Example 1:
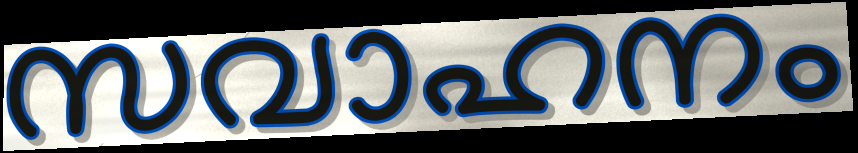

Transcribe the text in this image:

സവാഹനം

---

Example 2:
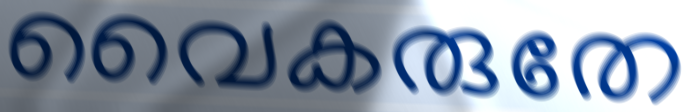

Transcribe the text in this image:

വൈകരുതേ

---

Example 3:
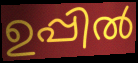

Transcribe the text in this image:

ഉപ്പിൽ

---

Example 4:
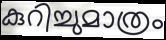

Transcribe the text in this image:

കുറിച്ചുമാത്രം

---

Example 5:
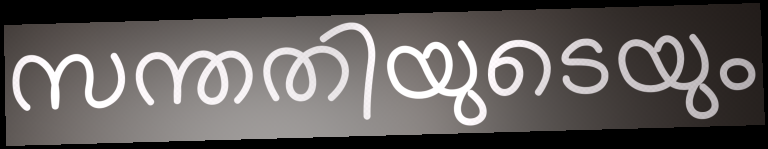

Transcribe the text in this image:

സന്തതിയുടെയും